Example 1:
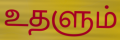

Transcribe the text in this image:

உதளும்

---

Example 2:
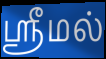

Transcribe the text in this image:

ஶ்ரீமல்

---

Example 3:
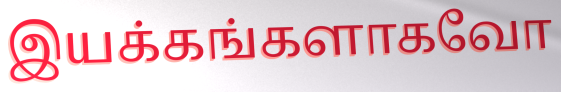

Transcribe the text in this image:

இயக்கங்களாகவோ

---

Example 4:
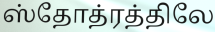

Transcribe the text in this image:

ஸ்தோத்ரத்திலே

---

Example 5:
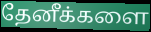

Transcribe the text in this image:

தேனீக்களை